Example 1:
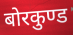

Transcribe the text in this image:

बोरकुण्ड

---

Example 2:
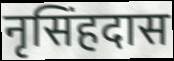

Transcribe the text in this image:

नृसिंहदास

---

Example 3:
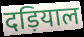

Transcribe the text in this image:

दड़ियाल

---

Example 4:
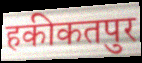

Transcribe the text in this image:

हकीकतपुर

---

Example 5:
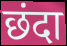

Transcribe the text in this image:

छंदा